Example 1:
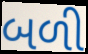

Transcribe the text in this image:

બળી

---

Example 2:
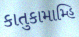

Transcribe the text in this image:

કાતુકામામ્હિ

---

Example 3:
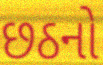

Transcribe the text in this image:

છઠનો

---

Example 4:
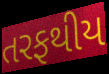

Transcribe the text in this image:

તરફથીય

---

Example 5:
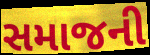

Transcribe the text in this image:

સમાજની